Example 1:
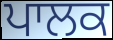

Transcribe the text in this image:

ਪਾਲਕ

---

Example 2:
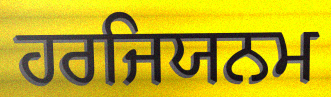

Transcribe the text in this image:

ਹਰਜਿਯਨਮ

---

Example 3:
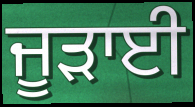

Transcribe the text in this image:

ਜੂੜਾਈ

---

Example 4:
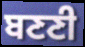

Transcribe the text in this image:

ਬਣਣੀ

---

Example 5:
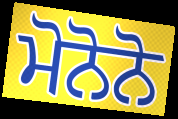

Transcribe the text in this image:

ਮੋਨੋਨੋ